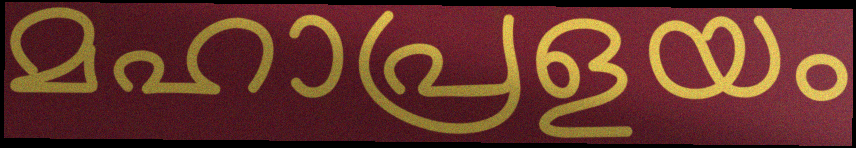
മഹാപ്രളയം